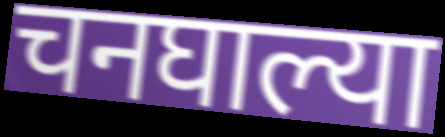
चनघाल्या